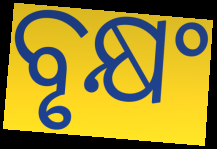
ବୃକ୍ଷଂ